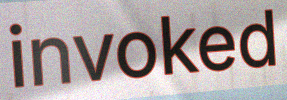
invoked